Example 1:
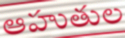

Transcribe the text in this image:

ఆహుతుల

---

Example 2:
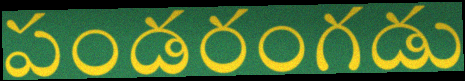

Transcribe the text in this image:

పండరంగడు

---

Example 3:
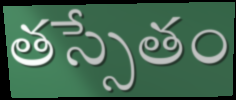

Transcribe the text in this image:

తస్సేతం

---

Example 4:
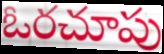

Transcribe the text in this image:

ఓరచూపు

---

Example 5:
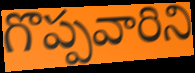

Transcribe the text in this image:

గొప్పవారిని